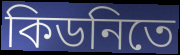
কিডনিতে